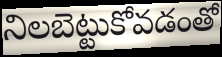
నిలబెట్టుకోవడంతో